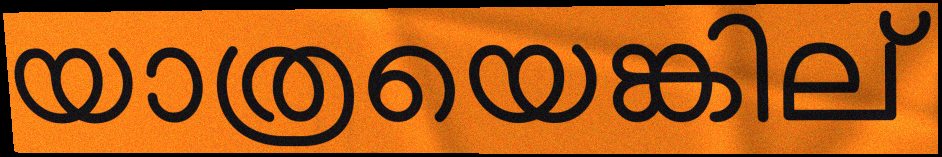
യാത്രയെങ്കില്